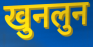
खुनलुन